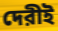
দেরীই